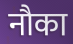
नौका